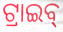
ଟ୍ରାଇବ୍